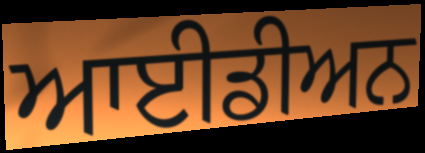
ਆਈਡੀਅਨ